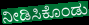
ನೀಡಿಸಿಕೊಂಡು